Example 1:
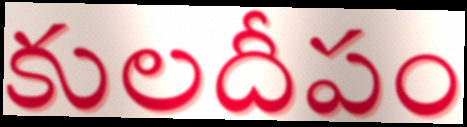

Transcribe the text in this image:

కులదీపం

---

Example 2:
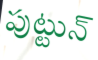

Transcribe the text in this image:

పుట్టున్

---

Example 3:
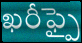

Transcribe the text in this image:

ఖరీఫ్పై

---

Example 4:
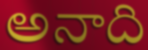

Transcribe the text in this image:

అనాది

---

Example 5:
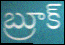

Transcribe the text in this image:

బ్రూక్